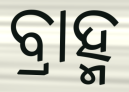
ବ୍ରାହ୍ମ